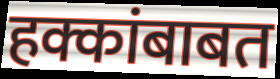
हक्कांबाबत